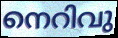
നെറിവു